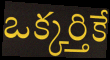
ఒక్కర్తికే